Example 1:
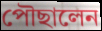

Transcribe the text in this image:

পৌছালেন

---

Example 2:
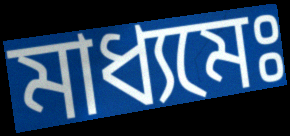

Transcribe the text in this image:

মাধ্যমেঃ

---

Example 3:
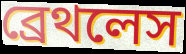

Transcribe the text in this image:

ব্রেথলেস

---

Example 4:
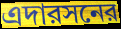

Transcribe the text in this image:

এদারসনের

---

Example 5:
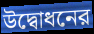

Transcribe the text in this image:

উদ্বোধনের